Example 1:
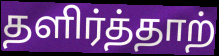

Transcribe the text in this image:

தளிர்த்தாற்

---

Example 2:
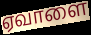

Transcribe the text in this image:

ஏவாளை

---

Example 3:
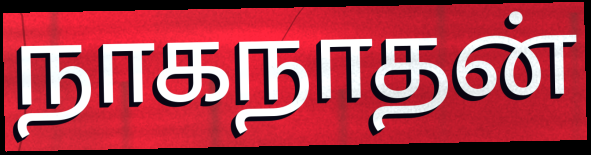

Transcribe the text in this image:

நாகநாதன்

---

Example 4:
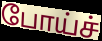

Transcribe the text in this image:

போய்ச்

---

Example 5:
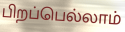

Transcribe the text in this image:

பிறப்பெல்லாம்